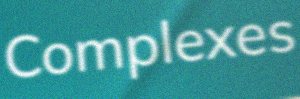
Complexes